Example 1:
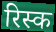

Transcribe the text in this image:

रिस्क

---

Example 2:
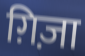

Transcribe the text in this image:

ग़िज़ा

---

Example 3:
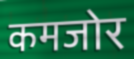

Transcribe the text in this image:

कमजोर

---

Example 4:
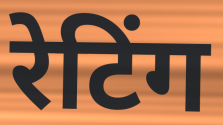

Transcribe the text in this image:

रेटिंग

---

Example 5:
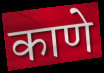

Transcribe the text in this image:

काणे